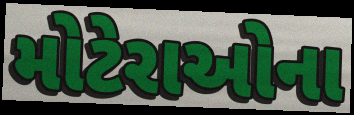
મોટેરાઓના